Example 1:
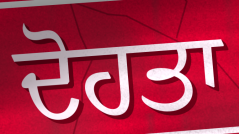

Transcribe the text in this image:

ਦੋਹਤਾ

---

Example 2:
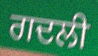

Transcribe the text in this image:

ਗਦਲੀ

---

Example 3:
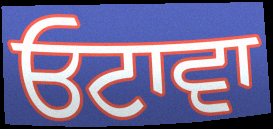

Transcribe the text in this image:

ਓਟਾਵਾ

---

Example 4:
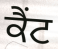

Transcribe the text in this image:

ਕੈਂਟ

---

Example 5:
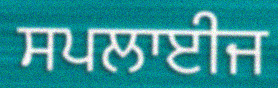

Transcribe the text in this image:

ਸਪਲਾਈਜ